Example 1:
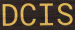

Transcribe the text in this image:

DCIS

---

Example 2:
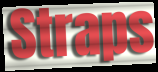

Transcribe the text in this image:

Straps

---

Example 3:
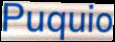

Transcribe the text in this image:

Puquio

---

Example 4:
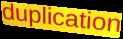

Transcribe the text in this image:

duplication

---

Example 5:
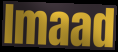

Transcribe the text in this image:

Imaad